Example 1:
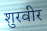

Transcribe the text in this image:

शुरवीर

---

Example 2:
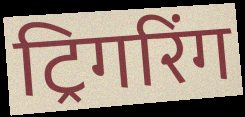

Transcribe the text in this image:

ट्रिगरिंग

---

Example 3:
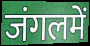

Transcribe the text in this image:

जंगलमें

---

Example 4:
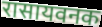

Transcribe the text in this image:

रासायवनक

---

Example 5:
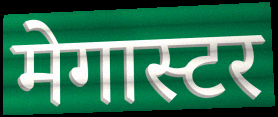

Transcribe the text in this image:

मेगास्टर